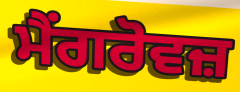
ਮੈਂਗਰੋਵਜ਼